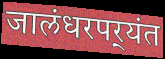
जालंधरपर्यंत